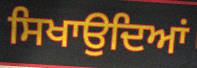
ਸਿਖਾਉਦਿਆਂ